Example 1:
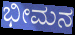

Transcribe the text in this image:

ಭೀಮನ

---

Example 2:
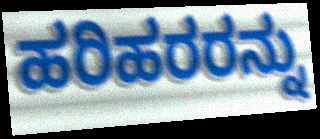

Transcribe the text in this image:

ಹರಿಹರರನ್ನು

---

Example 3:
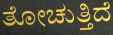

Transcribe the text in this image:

ತೋಚುತ್ತಿದೆ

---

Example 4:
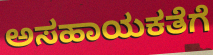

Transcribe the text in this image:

ಅಸಹಾಯಕತೆಗೆ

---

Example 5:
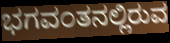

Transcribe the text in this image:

ಭಗವಂತನಲ್ಲಿರುವ